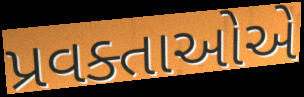
પ્રવક્તાઓએ